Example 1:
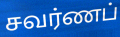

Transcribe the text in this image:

சவர்ணப்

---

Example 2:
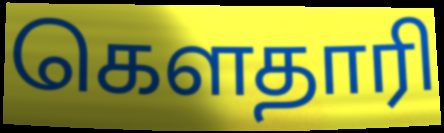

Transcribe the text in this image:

கௌதாரி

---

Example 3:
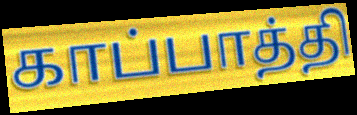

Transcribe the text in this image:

காப்பாத்தி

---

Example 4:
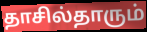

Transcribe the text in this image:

தாசில்தாரும்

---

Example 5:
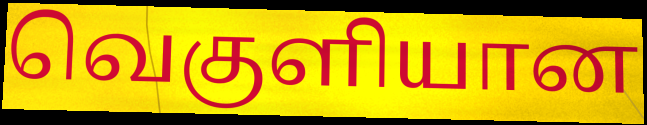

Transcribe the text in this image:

வெகுளியான